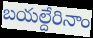
బయల్దేరినాం